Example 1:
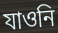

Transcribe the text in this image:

যাওনি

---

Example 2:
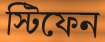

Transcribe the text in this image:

স্টিফেন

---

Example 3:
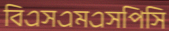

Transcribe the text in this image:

বিএসএমএসপিসি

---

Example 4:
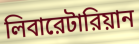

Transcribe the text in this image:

লিবারেটারিয়ান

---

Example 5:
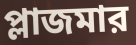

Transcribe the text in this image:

প্লাজমার